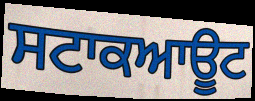
ਸਟਾਕਆਊਟ